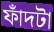
ফাঁদটা